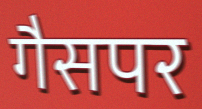
गैसपर